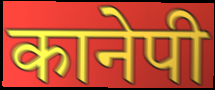
कानेपी